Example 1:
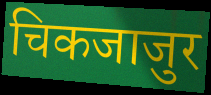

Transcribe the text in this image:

चिकजाजुर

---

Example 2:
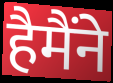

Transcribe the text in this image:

हैमैंने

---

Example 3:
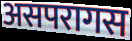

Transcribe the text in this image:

असपरागस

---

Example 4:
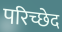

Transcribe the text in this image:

परिच्छेद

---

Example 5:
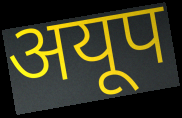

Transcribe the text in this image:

अयूप